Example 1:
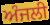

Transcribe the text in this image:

ਅੰਜਲੀ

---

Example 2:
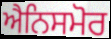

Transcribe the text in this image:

ਐਨਿਸਮੋਰ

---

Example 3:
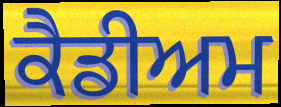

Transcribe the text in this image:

ਕੈਡੀਅਮ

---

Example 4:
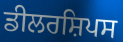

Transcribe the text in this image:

ਡੀਲਰਸ਼ਿਪਸ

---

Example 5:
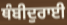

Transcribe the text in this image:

ਥੰਬੀਦੁਰਾਈ